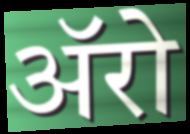
ॲरो